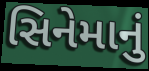
સિનેમાનું